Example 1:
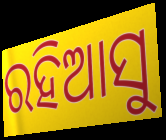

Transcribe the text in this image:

ରହିଆସୁ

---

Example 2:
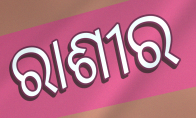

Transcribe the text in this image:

ରାଶୀର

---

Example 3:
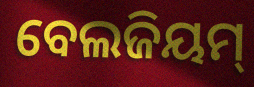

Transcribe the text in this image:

ବେଲଜିୟମ୍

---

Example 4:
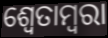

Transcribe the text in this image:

ଶ୍ୱେତାମ୍ବରା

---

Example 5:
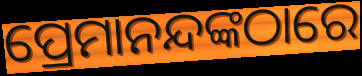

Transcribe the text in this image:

ପ୍ରେମାନନ୍ଦଙ୍କଠାରେ